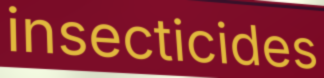
insecticides